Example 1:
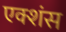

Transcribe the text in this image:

एक्शंस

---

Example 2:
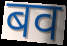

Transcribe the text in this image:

बव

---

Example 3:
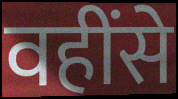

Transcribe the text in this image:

वहींसे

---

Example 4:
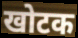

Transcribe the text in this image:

खोटक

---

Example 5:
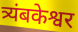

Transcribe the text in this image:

त्र्यंबकेश्वर